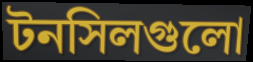
টনসিলগুলো